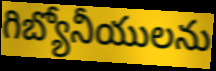
గిబ్యోనీయులను